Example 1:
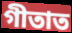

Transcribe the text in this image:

গীতাত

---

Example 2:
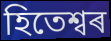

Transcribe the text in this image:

হিতেশ্বৰ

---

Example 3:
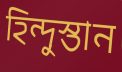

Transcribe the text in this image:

হিন্দুস্তান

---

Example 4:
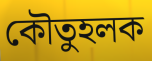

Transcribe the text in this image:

কৌতুহলক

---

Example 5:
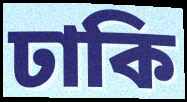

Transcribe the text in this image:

ঢাকি